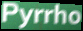
Pyrrho